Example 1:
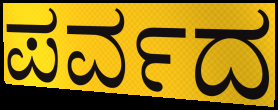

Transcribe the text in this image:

ಪರ್ವದ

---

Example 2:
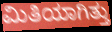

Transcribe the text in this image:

ಮಿತಿಯಾಗಿತ್ತು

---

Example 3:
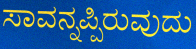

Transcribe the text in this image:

ಸಾವನ್ನಪ್ಪಿರುವುದು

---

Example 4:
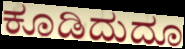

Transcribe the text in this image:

ಕೂಡಿದುದೂ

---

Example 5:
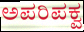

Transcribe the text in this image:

ಅಪರಿಪಕ್ವ